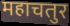
महाचतुर